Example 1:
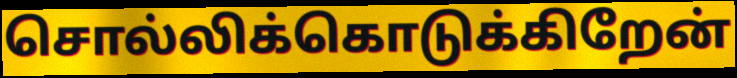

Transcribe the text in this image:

சொல்லிக்கொடுக்கிறேன்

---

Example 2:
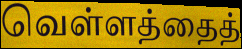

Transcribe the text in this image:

வெள்ளத்தைத்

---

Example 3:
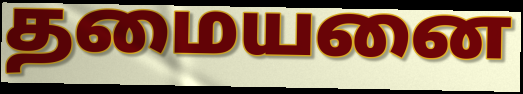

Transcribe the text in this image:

தமையனை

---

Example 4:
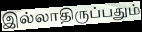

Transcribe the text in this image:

இல்லாதிருப்பதும்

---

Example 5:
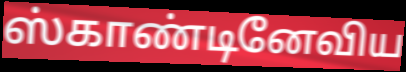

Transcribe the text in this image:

ஸ்காண்டினேவிய